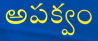
అపక్వం